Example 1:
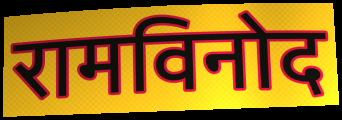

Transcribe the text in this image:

रामविनोद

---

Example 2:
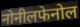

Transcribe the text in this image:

नोनीलफेनोल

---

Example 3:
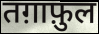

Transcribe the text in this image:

तग़ाफ़ुल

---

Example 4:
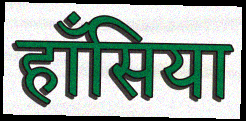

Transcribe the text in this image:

हाँसिया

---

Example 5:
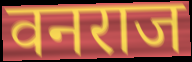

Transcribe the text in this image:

वनराज